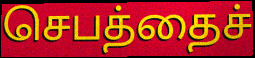
செபத்தைச்